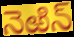
నెఱిన్